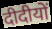
दीदीयों